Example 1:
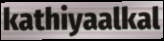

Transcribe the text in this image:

kathiyaalkal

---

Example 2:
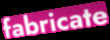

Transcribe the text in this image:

fabricate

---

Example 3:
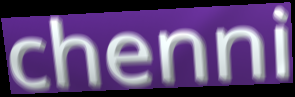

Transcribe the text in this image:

chenni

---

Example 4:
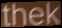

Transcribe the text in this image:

thek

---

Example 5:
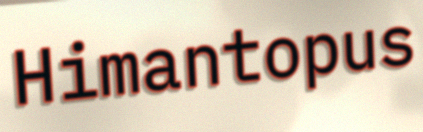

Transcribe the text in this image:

Himantopus